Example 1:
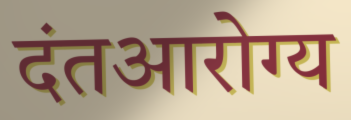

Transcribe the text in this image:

दंतआरोग्य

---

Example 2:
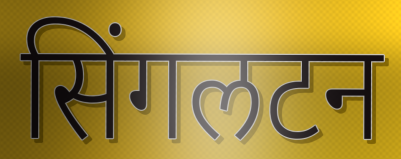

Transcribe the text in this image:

सिंगलटन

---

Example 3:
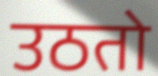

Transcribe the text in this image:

उठतो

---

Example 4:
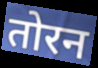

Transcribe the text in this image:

तोरन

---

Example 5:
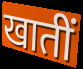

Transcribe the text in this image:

खातीं